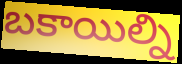
బకాయిల్ని